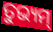
ତୁଭ୍ୟମ୍